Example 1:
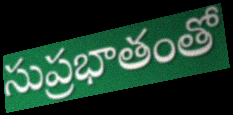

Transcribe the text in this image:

సుప్రభాతంతో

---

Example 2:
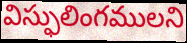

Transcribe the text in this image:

విస్ఫులింగములని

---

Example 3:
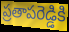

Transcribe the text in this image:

ప్రతాపరెడ్డికి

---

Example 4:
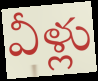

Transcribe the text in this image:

వీళ్లు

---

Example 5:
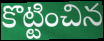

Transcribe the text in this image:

కొట్టించిన